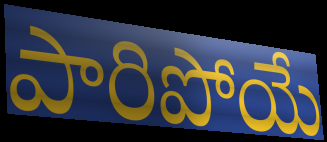
పారిపోయే